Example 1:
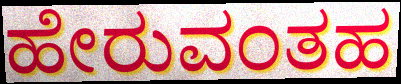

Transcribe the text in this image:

ಹೇರುವಂತಹ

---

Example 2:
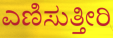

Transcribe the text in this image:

ಎಣಿಸುತ್ತೀರಿ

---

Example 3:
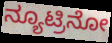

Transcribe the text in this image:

ನ್ಯೂಟ್ರಿನೋ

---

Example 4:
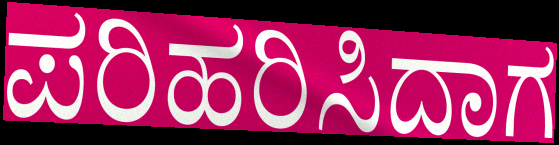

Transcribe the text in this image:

ಪರಿಹರಿಸಿದಾಗ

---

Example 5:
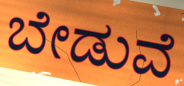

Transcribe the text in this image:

ಬೇಡುವೆ